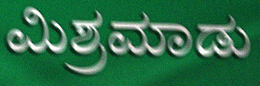
ಮಿಶ್ರಮಾಡು